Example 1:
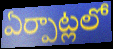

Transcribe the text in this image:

ఏర్పాట్లలో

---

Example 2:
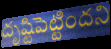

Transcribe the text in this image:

దృష్టిపెట్టిందని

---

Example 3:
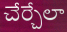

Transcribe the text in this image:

చేర్చేలా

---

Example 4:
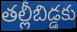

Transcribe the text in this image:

తల్లీబిడ్డకు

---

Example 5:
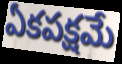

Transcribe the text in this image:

ఏకపక్షమే